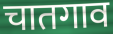
चातगाव